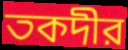
তকদীর